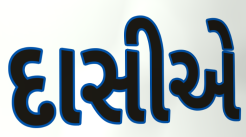
દાસીએ